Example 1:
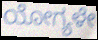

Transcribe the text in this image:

ಯೋಗ್ಯಳೇ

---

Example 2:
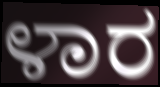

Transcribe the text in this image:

ಳಾರ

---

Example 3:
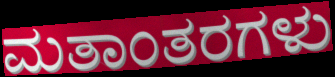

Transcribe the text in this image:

ಮತಾಂತರಗಳು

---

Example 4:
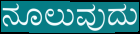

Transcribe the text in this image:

ನೂಲುವುದು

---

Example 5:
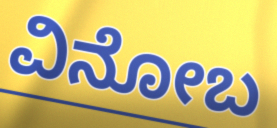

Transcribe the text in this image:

ವಿನೋಬ